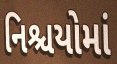
નિશ્ચયોમાં